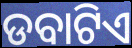
ଡବାଟିଏ